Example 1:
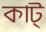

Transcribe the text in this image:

কাট্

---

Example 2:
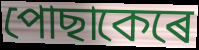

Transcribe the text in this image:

পোছাকেৰে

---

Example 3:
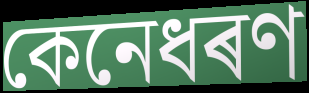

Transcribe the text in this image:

কেনেধৰণ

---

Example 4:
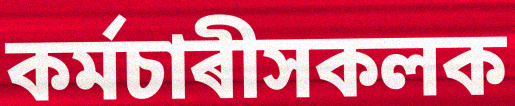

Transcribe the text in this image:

কৰ্মচাৰীসকলক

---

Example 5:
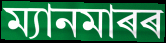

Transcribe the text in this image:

ম্যানমাৰৰ